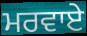
ਮਰਵਾਏ